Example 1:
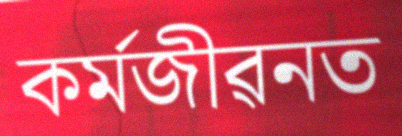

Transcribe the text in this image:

কৰ্মজীৱনত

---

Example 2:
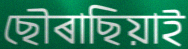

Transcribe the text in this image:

ছৌৰাছিয়াই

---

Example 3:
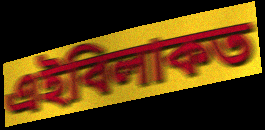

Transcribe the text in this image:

এইবিলাকত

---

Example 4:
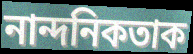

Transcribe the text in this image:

নান্দনিকতাক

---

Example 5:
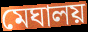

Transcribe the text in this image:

মেঘালয়